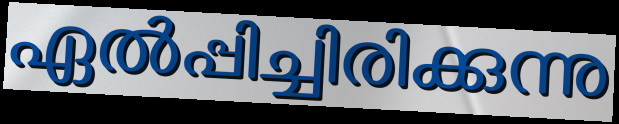
ഏൽപ്പിച്ചിരിക്കുന്നു